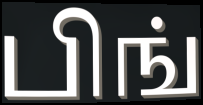
பிங்